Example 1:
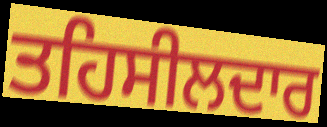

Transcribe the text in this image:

ਤਹਿਸੀਲਦਾਰ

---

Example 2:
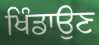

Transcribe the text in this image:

ਖਿੰਡਾਉਣ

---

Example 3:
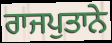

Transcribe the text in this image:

ਰਾਜਪੁਤਾਨੇ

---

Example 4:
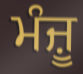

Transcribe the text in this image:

ਮੰਜ਼ੂ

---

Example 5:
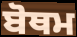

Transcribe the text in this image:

ਬੋਥਮ